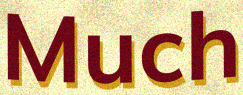
Much